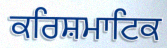
ਕਰਿਸ਼ਮਾਟਿਕ